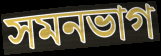
সমনভাগ